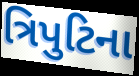
ત્રિપુટિના